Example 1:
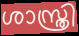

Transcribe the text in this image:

ശാസ്ത്രി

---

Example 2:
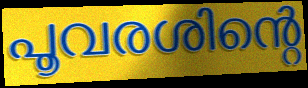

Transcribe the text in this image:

പൂവരശിന്റെ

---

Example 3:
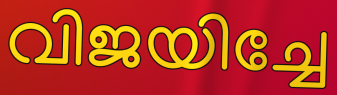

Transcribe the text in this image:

വിജയിച്ചേ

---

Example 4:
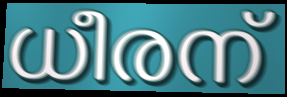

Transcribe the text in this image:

ധീരന്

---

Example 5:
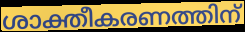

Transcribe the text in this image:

ശാക്തീകരണത്തിന്